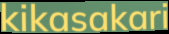
kikasakari